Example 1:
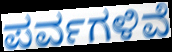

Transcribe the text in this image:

ಪರ್ವಗಳಿವೆ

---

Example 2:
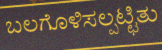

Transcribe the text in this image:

ಬಲಗೊಳಿಸಲ್ಪಟ್ಟಿತು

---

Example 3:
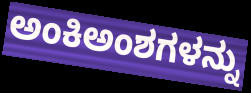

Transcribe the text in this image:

ಅಂಕಿಅಂಶಗಳನ್ನು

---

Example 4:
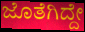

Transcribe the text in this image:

ಜೊತೆಗಿದ್ದೇ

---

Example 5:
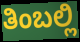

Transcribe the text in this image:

ತಿಂಬಲ್ಲಿ